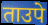
ताउपे